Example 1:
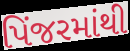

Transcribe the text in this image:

પિંજરમાંથી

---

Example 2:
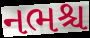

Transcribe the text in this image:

નભશ્ચ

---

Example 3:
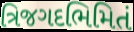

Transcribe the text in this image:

ત્રિજગદભિમિતં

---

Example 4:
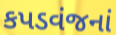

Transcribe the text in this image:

કપડવંજનાં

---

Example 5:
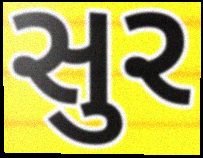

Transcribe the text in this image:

સુર